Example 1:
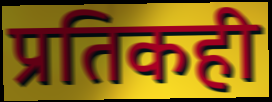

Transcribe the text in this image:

प्रतिकही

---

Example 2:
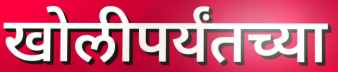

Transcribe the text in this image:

खोलीपर्यंतच्या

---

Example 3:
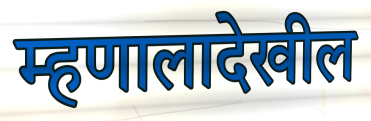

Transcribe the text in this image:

म्हणालादेखील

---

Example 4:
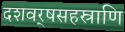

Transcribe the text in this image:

दशवर्षसहस्राणि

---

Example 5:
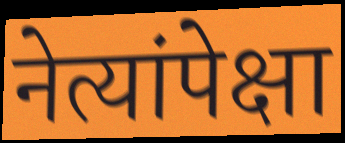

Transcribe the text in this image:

नेत्यांपेक्षा